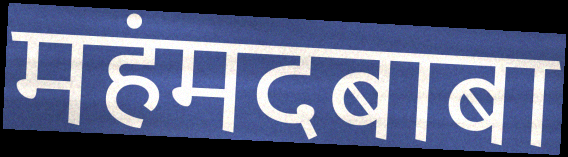
महंमदबाबा